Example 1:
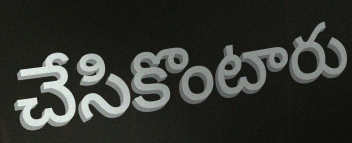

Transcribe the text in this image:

చేసికొంటారు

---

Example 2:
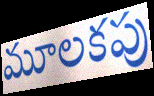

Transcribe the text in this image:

మూలకపు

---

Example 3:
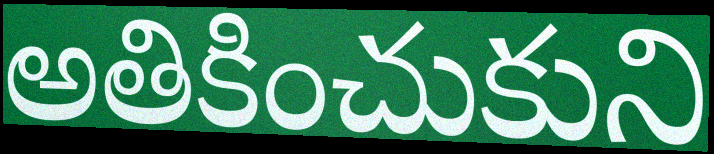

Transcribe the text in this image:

అతికించుకుని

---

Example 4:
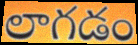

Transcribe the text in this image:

లాగడం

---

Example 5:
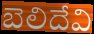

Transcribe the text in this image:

బెలిదేవి